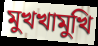
মুখখামুখি